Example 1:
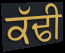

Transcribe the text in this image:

ਕੱਢੀ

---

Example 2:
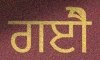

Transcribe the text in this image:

ਗਈੈ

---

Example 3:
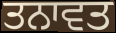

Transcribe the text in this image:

ਤਨਾਵਤ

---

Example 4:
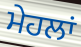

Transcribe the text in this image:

ਮੇਹਲਾਂ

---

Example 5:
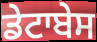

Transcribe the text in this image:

ਡੇਟਾਬੇਸ